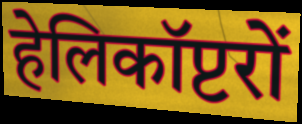
हेलिकॉप्टरों